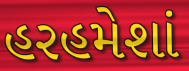
હરહમેશાં